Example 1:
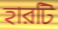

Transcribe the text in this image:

হারটি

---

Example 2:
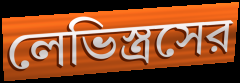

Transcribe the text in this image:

লেভিস্ত্রসের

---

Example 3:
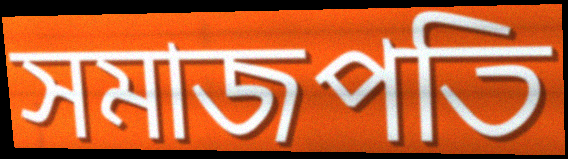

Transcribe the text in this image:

সমাজপতি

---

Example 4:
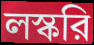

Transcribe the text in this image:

লস্করি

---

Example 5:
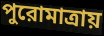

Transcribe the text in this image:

পুরোমাত্রায়